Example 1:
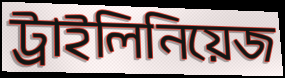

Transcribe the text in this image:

ট্রাইলিনিয়েজ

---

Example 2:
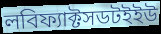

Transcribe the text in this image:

লবিফ্যাক্টসডটইইউ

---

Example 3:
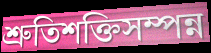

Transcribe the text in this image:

শ্রুতিশক্তিসম্পন্ন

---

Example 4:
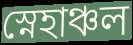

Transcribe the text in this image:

স্নেহাঞ্চল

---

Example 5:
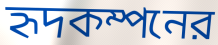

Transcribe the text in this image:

হৃদকম্পনের